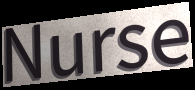
Nurse